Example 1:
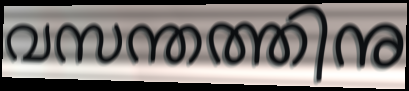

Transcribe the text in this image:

വസന്തത്തിനു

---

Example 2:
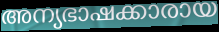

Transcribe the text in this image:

അന്യഭാഷക്കാരായ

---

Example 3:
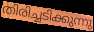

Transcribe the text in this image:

തിരിച്ചടിക്കുന്നു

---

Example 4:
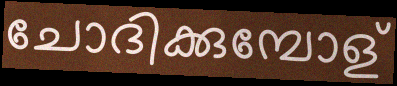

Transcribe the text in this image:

ചോദിക്കുമ്പോള്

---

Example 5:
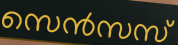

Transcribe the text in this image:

സെൻസസ്